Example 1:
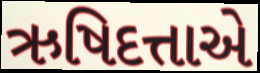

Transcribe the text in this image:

ઋષિદત્તાએ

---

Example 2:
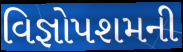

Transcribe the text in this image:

વિજ્ઞોપશમની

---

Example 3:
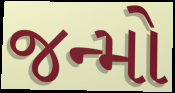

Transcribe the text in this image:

જન્મો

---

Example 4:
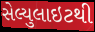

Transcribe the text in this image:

સેલ્યુલાઇટથી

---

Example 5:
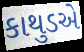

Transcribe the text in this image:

કાથુડએ